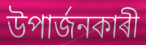
উপাৰ্জনকাৰী